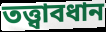
তত্ত্বাবধান